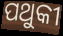
ପଥୁକୀ